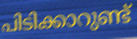
പിടിക്കാറുണ്ട്